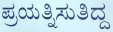
ಪ್ರಯತ್ನಿಸುತಿದ್ದ